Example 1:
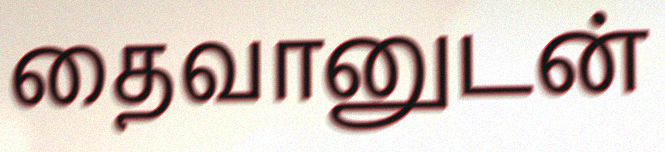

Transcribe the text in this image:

தைவானுடன்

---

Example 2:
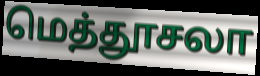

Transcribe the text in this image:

மெத்தூசலா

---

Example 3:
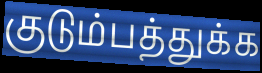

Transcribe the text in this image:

குடும்பத்துக்க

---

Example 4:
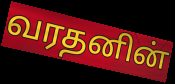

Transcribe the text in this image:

வரதனின்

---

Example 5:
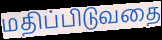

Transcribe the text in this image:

மதிப்பிடுவதை